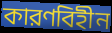
কারণবিহীন